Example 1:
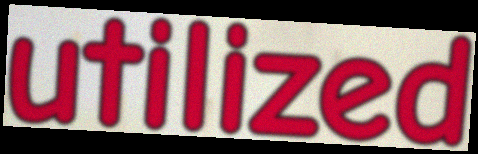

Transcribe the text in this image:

utilized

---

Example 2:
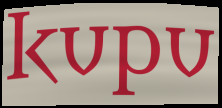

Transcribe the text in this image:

kupu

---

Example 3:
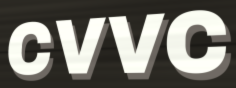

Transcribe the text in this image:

CVVC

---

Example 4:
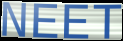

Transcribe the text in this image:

NEET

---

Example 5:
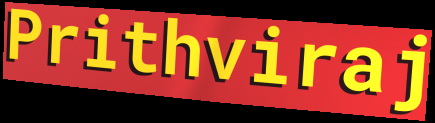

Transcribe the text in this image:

Prithviraj